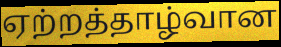
ஏற்றத்தாழ்வான